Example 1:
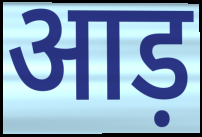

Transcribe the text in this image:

आड़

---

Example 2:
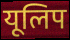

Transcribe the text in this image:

यूलिप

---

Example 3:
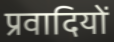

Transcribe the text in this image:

प्रवादियों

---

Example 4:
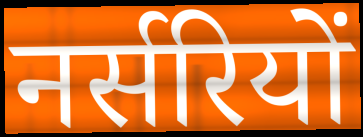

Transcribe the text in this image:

नर्सरियों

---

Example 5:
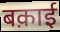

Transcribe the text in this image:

बक़ाई